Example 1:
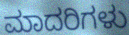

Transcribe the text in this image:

ಮಾದರಿಗಳು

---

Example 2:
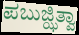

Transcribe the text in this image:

ಪಬುಜ್ಝಿತ್ವಾ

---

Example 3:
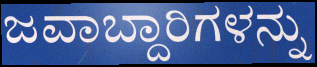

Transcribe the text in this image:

ಜವಾಬ್ದಾರಿಗಳನ್ನು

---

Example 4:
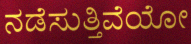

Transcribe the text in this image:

ನಡೆಸುತ್ತಿವೆಯೋ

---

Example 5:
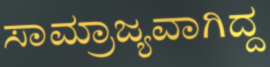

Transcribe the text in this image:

ಸಾಮ್ರಾಜ್ಯವಾಗಿದ್ದ